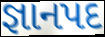
જ્ઞાનપદ